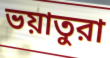
ভয়াতুরা